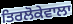
ਤਿਰਲੋਕੇਵਾਲਾ